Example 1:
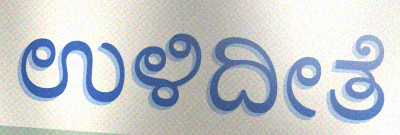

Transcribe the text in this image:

ಉಳಿದೀತೆ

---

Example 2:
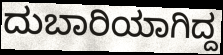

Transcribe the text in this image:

ದುಬಾರಿಯಾಗಿದ್ದ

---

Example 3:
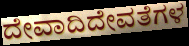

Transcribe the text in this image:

ದೇವಾದಿದೇವತೆಗಳ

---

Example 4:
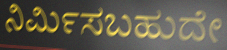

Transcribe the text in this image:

ನಿರ್ಮಿಸಬಹುದೇ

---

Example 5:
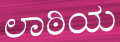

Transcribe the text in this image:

ಲಾಠಿಯ